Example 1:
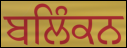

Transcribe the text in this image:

ਬਲਿੰਕਨ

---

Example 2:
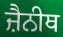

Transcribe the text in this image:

ਜ਼ੈਨੀਥ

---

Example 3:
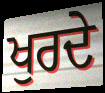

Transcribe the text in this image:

ਖੁਰਦੇ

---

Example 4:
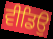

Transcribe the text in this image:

ਵੀਡਿਉ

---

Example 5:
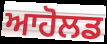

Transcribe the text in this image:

ਆਹੋਲਡ